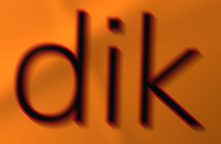
dik